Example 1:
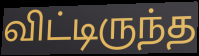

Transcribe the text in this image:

விட்டிருந்த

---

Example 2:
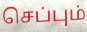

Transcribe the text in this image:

செப்பும்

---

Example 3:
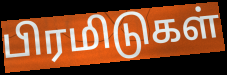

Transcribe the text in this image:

பிரமிடுகள்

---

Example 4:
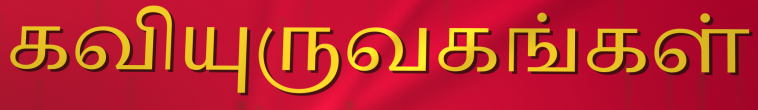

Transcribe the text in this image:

கவியுருவகங்கள்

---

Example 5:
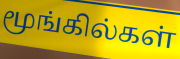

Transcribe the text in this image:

மூங்கில்கள்